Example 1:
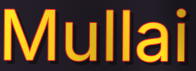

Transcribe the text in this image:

Mullai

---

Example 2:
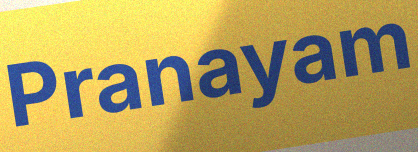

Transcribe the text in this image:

Pranayam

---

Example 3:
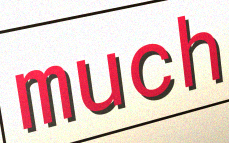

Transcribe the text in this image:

much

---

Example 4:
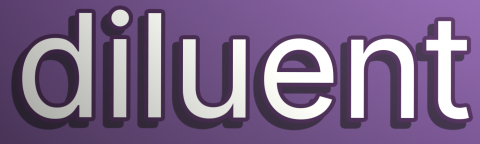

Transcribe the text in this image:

diluent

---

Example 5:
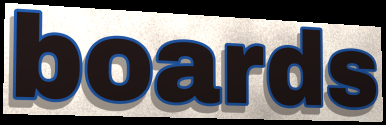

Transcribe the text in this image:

boards